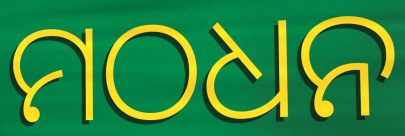
ମଠଧନ